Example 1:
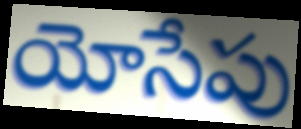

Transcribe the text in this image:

యోసేపు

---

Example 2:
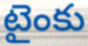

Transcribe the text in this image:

టైంకు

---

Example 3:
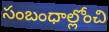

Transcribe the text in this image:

సంబంధాల్లోంచి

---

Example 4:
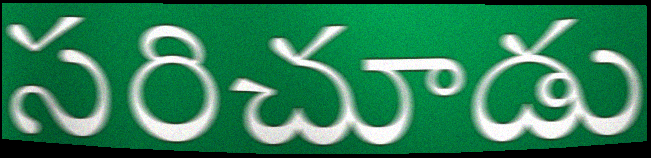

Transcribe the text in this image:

సరిచూడు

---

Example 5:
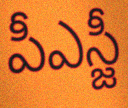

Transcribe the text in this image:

పీఎస్జీ